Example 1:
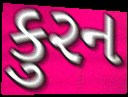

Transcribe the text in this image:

કુરન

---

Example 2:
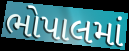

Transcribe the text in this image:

ભોપાલમાં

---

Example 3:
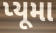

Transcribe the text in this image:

પ્યૂમા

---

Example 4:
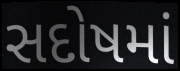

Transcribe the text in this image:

સદોષમાં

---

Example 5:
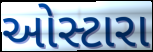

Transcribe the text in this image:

ઓસ્ટારા